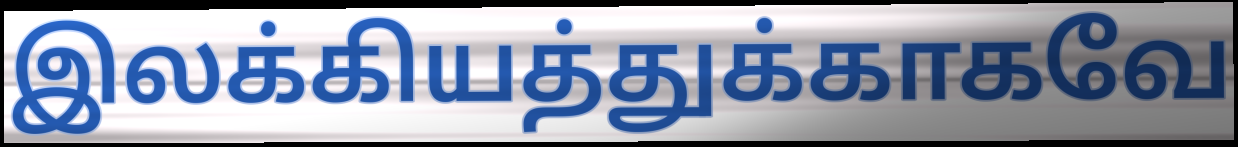
இலக்கியத்துக்காகவே